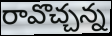
రావొచ్చన్న